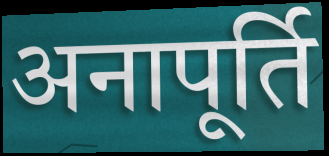
अनापूर्ति